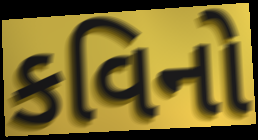
કવિનો